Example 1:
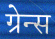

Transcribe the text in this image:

ग्रेन्स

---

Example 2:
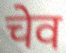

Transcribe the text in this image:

चेव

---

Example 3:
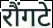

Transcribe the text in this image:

रौंगटे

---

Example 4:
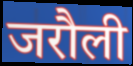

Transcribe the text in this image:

जरौली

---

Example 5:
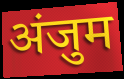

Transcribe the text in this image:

अंजुम